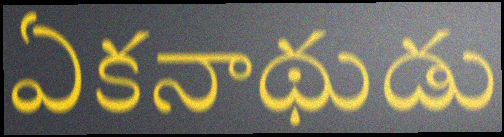
ఏకనాథుడు